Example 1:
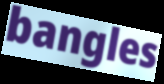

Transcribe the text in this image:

bangles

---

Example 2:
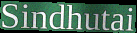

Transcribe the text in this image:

Sindhutai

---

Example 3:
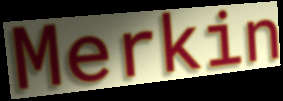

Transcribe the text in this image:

Merkin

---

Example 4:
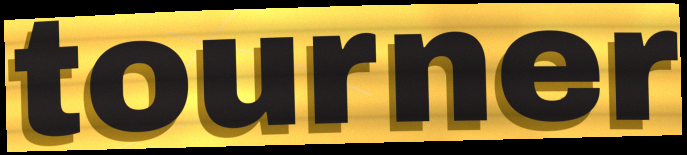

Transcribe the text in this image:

tourner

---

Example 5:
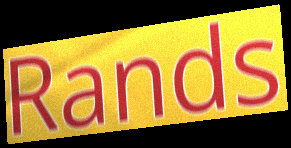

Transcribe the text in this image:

Rands